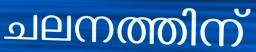
ചലനത്തിന്